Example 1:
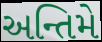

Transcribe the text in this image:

અન્તિમે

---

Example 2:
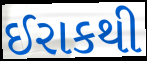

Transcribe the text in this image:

ઈરાકથી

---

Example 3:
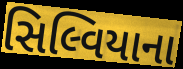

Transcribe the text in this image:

સિલ્વિયાના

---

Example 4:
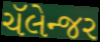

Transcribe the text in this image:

ચૅલેન્જર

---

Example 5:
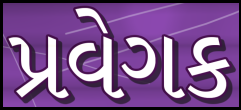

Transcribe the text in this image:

પ્રવેગક